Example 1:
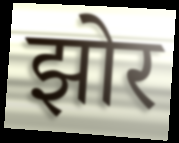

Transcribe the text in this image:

झोर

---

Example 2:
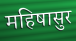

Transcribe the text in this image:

महिषासुर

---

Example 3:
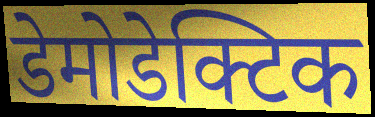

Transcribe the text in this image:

डेमोडेक्टिक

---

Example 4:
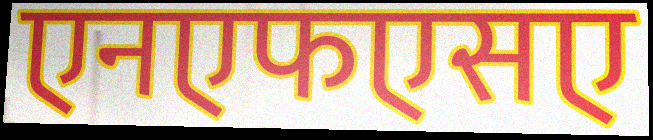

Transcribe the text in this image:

एनएफएसए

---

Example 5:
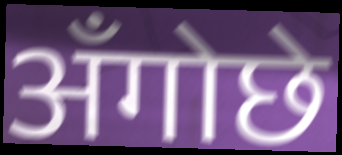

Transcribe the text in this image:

अँगोछे